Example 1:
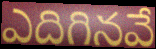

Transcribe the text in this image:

ఎదిగినవే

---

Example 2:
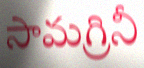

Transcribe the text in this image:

సామగ్రినీ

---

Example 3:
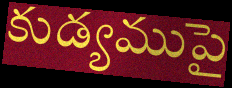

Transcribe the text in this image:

కుడ్యముపై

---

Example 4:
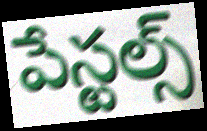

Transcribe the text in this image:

పేస్టల్స్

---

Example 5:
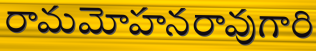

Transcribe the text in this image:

రామమోహనరావుగారి